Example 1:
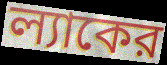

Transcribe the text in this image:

ল্যাকের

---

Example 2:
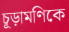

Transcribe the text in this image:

চূড়ামণিকে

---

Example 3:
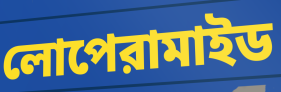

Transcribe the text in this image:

লোপেরামাইড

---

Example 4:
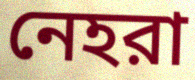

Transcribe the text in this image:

নেহরা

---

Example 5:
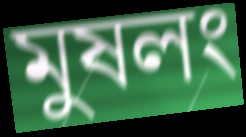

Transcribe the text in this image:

মুষলং